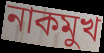
নাকমুখ